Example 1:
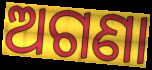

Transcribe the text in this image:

ଅଗଣା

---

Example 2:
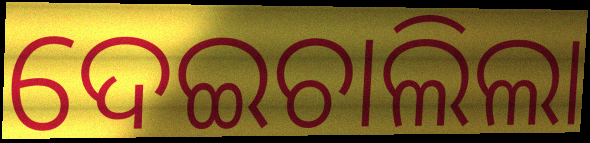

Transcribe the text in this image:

ଦେଇଚାଲିଲା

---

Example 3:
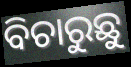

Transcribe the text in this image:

ବିଚାରୁଛୁ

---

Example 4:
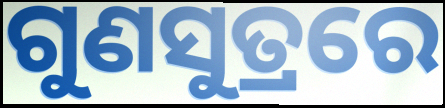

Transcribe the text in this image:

ଗୁଣସୁତ୍ରରେ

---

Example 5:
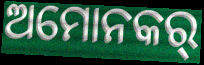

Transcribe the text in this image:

ଅମୋନକର୍